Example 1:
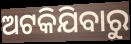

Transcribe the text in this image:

ଅଟକିଯିବାରୁ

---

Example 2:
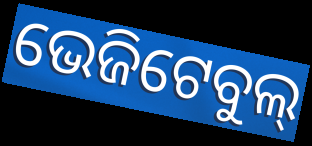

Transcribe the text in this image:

ଭେଜିଟେବୁଲ୍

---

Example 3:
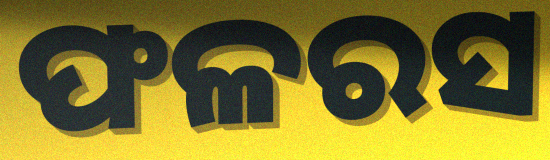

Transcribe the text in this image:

ଫଳରସ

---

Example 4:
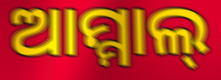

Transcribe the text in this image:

ଆମ୍ମାଲ୍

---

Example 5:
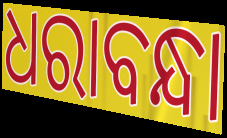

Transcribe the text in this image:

ଧରାବନ୍ଧା